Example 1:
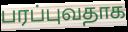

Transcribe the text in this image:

பரப்புவதாக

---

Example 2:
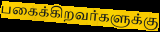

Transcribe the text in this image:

பகைக்கிறவர்களுக்கு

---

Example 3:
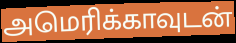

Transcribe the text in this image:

அமெரிக்காவுடன்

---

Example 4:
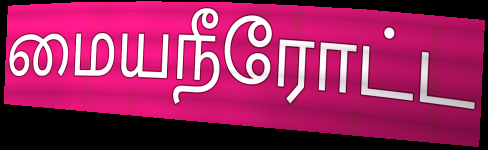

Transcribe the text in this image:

மையநீரோட்ட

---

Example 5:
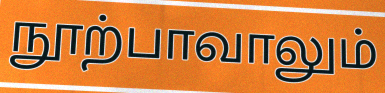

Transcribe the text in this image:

நூற்பாவாலும்